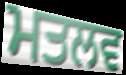
ਮਤਲਵ